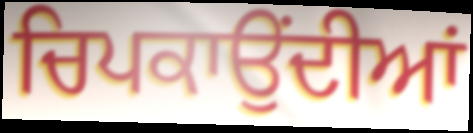
ਚਿਪਕਾਉਂਦੀਆਂ